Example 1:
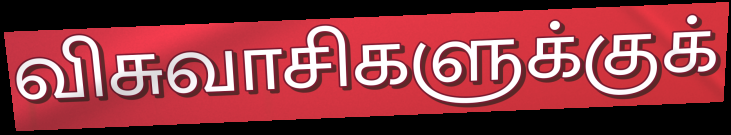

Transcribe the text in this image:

விசுவாசிகளுக்குக்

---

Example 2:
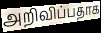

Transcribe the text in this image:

அறிவிப்பதாக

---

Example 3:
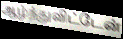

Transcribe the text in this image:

ஆழ்ந்துவிட்டேன்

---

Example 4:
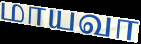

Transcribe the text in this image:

மாயவா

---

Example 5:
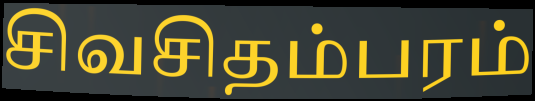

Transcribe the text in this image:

சிவசிதம்பரம்